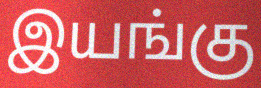
இயங்கு